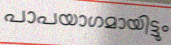
പാപയാഗമായിട്ടും